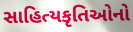
સાહિત્યકૃતિઓનો